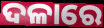
ଦଳାରେ